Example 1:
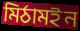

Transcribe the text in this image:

মিঠামইন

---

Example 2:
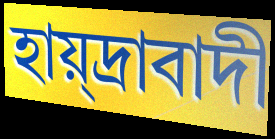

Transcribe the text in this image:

হায়্দ্রাবাদী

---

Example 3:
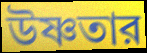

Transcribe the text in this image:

উষ্ণতার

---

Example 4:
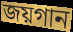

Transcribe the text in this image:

জয়গান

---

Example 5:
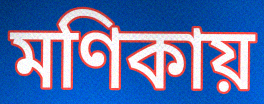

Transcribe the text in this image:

মণিকায়